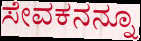
ಸೇವಕನನ್ನೂ